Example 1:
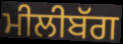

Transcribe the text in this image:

ਮੀਲੀਬੱਗ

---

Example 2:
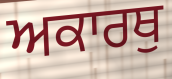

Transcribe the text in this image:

ਅਕਾਰਥੁ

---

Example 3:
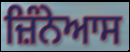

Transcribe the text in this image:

ਜ਼ਿੰਨੇਆਸ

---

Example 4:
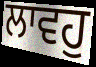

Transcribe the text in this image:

ਲਾਵਹੁ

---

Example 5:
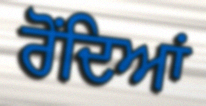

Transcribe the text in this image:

ਰੋਂਦਿਆਂ